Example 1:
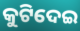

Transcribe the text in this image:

କୁଟିଦେଇ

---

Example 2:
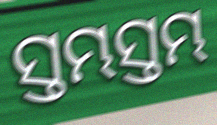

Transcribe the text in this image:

ସ୍ତମ୍ଭସ୍ତମ୍ଭ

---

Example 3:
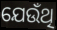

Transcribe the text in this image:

ଯେଉଁଥି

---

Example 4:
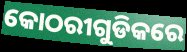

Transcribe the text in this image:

କୋଠରୀଗୁଡିକରେ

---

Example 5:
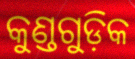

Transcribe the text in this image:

କୁଣ୍ଡଗୁଡ଼ିକ